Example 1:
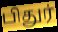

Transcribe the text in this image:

பிதுர்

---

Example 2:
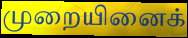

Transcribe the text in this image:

முறையினைக்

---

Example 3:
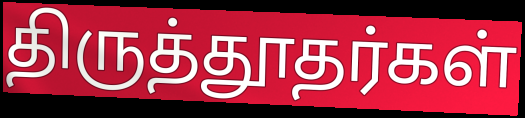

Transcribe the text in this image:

திருத்தூதர்கள்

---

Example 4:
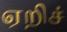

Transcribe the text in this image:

ஏறிச்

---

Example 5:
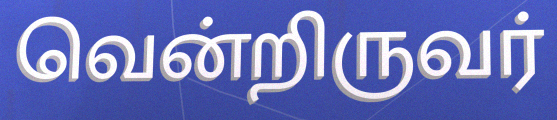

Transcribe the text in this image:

வென்றிருவர்